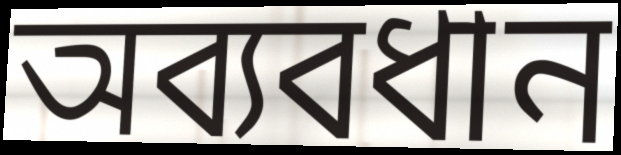
অব্যবধান